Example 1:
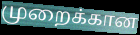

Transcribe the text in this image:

முறைக்கான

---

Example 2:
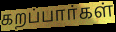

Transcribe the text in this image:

கறப்பார்கள்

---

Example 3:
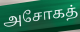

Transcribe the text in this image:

அசோகத்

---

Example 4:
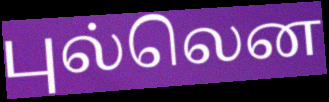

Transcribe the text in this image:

புல்லென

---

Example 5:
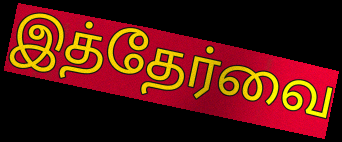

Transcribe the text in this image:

இத்தேர்வை